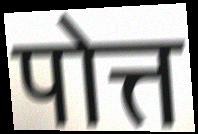
पोत्त